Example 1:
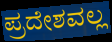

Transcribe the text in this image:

ಪ್ರದೇಶವಲ್ಲ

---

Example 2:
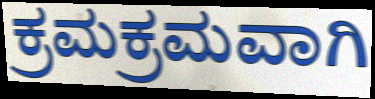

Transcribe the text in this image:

ಕ್ರಮಕ್ರಮವಾಗಿ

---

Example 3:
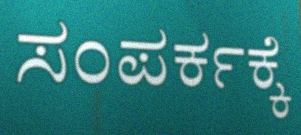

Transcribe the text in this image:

ಸಂಪರ್ಕಕ್ಕೆ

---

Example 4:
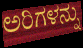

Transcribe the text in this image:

ಅರಿಗಳನ್ನು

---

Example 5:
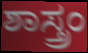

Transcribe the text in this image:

ಶಾಸ್ತ್ರಂ